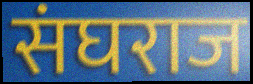
संघराज